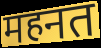
महनत